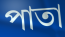
পাতা